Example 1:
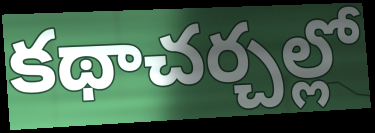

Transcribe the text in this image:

కథాచర్చల్లో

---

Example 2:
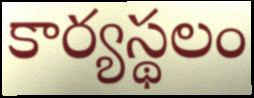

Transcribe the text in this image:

కార్యస్థలం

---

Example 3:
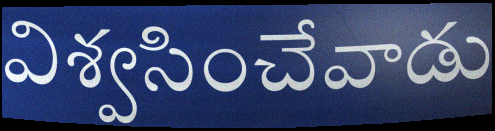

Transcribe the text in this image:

విశ్వసించేవాడు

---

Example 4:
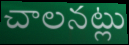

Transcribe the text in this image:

చాలనట్లు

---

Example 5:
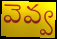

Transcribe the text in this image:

వెవ్వ